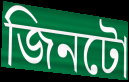
জিনটো